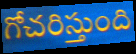
గోచరిస్తుంది